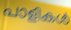
പാളികൾ